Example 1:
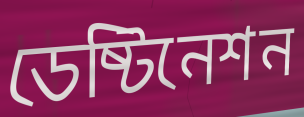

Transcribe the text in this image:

ডেষ্টিনেশন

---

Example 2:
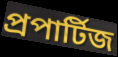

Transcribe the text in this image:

প্রপার্টিজ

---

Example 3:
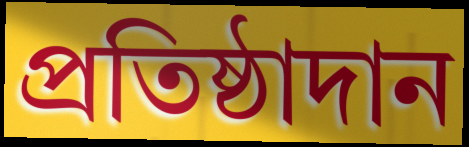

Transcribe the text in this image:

প্রতিষ্ঠাদান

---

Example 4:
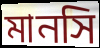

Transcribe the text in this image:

মানসি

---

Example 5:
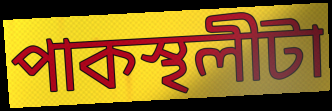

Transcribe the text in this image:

পাকস্থলীটা